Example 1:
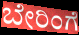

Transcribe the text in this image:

ಬೇರಿಂಗೆ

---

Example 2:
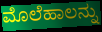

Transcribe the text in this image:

ಮೊಲೆಹಾಲನ್ನು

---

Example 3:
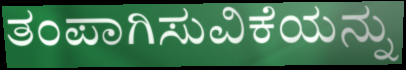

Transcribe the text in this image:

ತಂಪಾಗಿಸುವಿಕೆಯನ್ನು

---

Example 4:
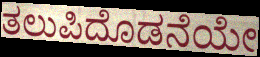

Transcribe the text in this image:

ತಲುಪಿದೊಡನೆಯೇ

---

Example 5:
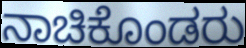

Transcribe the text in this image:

ನಾಚಿಕೊಂಡರು